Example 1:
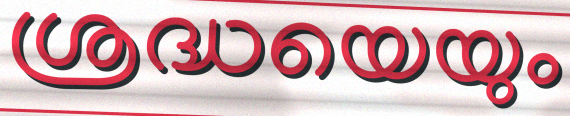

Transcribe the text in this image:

ശ്രദ്ധയെയും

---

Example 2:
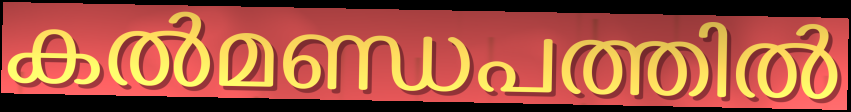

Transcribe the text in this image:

കൽമണ്ഡപത്തിൽ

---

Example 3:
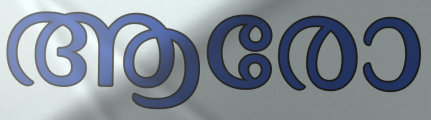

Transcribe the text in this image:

ആരോ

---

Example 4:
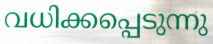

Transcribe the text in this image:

വധിക്കപ്പെടുന്നു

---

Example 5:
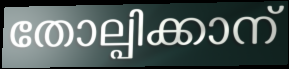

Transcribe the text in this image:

തോല്പിക്കാന്